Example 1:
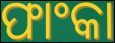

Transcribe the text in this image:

ଫାଂକା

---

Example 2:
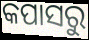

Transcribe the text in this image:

କପାସରୁ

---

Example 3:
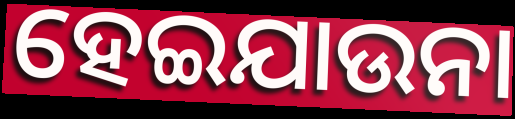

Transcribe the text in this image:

ହେଇଯାଉନା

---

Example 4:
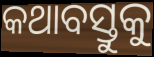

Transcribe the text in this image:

କଥାବସ୍ତୁକୁ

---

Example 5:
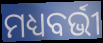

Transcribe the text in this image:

ମଧ୍ଯବର୍ଭୀ